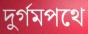
দুর্গমপথে